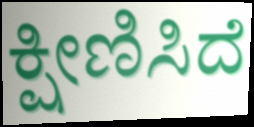
ಕ್ಷೀಣಿಸಿದೆ